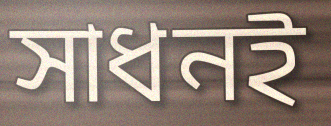
সাধনই